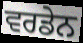
ਵਰਡੇਨ